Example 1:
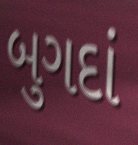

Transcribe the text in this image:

બુગદાં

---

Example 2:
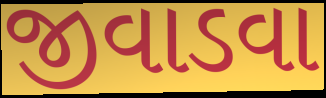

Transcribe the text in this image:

જીવાડવા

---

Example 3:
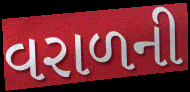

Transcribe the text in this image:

વરાળની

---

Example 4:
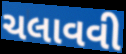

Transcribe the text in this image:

ચલાવવી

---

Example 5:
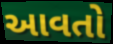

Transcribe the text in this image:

આવતો